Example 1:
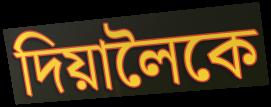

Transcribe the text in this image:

দিয়ালৈকে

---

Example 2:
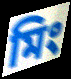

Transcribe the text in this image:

মিং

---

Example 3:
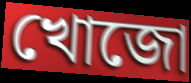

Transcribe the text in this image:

খোজো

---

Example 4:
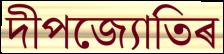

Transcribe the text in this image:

দীপজ্যোতিৰ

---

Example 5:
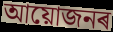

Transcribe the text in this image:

আয়োজনৰ